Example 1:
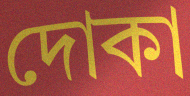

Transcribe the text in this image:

দোকা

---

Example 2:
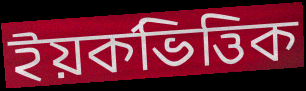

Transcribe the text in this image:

ইয়র্কভিত্তিক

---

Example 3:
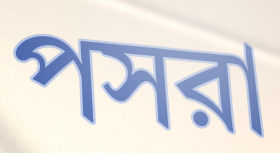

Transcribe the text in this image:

পসরা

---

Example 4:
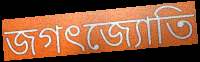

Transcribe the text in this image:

জগৎজ্যোতি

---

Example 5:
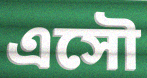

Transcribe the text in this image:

এসৌ